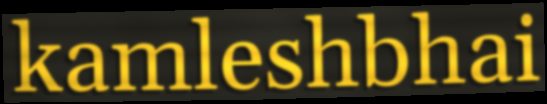
kamleshbhai